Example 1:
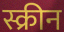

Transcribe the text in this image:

स्क्रीन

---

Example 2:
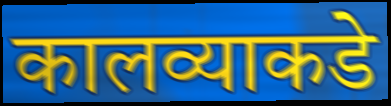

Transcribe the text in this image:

कालव्याकडे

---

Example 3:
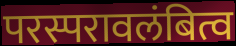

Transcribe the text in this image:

परस्परावलंबित्व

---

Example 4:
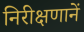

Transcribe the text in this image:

निरीक्षणानें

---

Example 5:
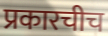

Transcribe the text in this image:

प्रकारचीच